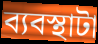
ব্যবস্থাটা